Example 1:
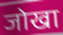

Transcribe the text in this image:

जोखा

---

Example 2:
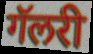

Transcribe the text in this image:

गॅलरी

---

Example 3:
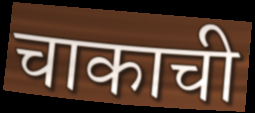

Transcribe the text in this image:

चाकाची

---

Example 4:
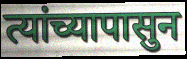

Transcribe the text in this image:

त्यांच्यापासुन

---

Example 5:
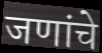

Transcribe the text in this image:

जणांचे